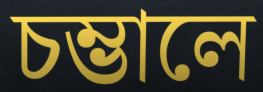
চম্ভালে